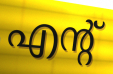
എന്റ്